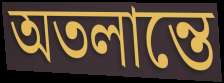
অতলান্তে